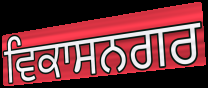
ਵਿਕਾਸਨਗਰ